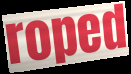
roped